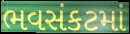
ભવસંકટમાં